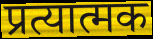
प्रत्यात्मक